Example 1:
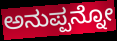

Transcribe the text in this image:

ಅನುಪ್ಪನ್ನೋ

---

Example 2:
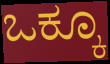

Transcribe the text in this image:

ಒಕ್ಕೂ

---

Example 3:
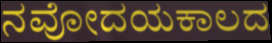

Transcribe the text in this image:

ನವೋದಯಕಾಲದ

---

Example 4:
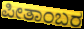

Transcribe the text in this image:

ಪೀತಾಂಬರ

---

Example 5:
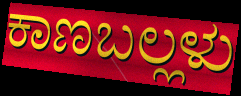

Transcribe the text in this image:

ಕಾಣಬಲ್ಲಳು